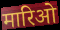
मारिओ